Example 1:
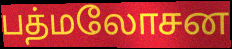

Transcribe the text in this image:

பத்மலோசன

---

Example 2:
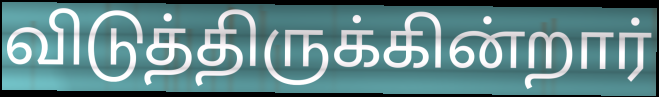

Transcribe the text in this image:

விடுத்திருக்கின்றார்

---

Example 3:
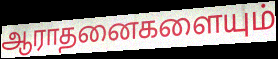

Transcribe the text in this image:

ஆராதனைகளையும்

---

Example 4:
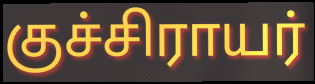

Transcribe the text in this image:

குச்சிராயர்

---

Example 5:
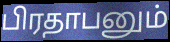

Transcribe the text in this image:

பிரதாபனும்